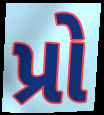
પ્રો